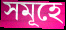
সমূহে